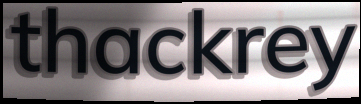
thackrey